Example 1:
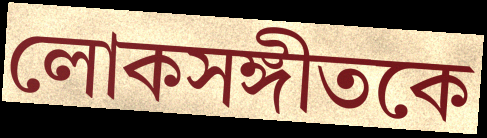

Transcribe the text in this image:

লোকসঙ্গীতকে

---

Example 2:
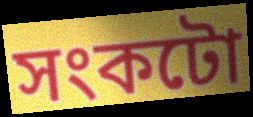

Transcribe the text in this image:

সংকটো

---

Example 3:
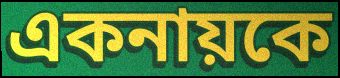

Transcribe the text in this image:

একনায়কে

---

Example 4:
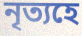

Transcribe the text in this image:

নৃত্যহে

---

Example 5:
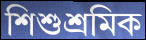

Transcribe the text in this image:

শিশুশ্ৰমিক